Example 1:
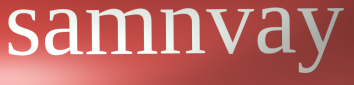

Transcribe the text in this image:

samnvay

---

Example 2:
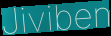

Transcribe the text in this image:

Jiviben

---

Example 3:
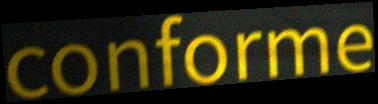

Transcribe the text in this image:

conforme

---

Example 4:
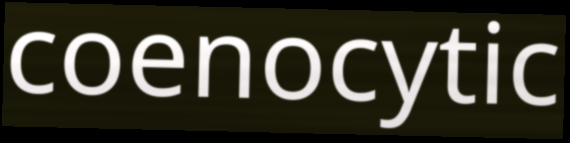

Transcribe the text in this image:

coenocytic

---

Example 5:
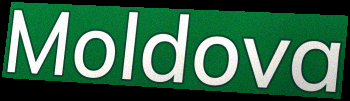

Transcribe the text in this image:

Moldova